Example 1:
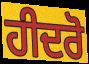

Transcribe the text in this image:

ਹੀਦਰੋ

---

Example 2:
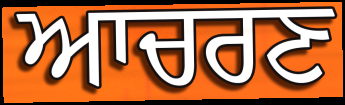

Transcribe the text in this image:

ਆਚਰਣ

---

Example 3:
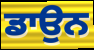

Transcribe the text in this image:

ਡਾਉਨ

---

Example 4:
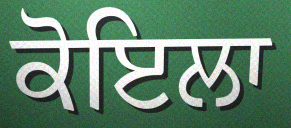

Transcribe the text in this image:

ਕੋਇਲਾ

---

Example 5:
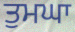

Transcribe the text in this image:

ਤੁਮਘਾ